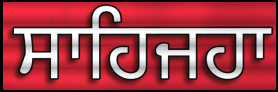
ਸਾਹਿਜਹਾ